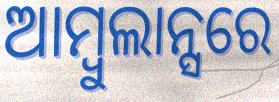
ଆମ୍ବୁଲାନ୍ସରେ